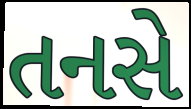
તનસે